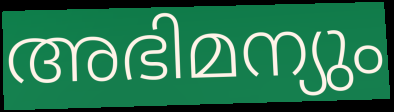
അഭിമന്യും